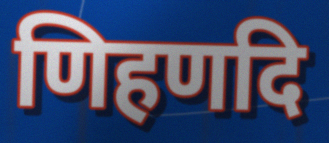
णिहणदि